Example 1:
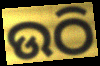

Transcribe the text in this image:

ଉଠି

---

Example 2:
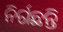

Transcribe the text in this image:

ନିର୍ଗଛନ୍ତି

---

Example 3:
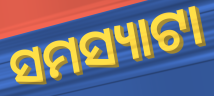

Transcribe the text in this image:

ସମସ୍ୟାଟା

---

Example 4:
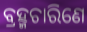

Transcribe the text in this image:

ବ୍ରହ୍ମଚାରିଣେ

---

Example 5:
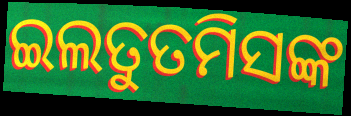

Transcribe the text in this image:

ଇଲତୁତମିସଙ୍କ